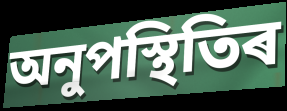
অনুপস্থিতিৰ